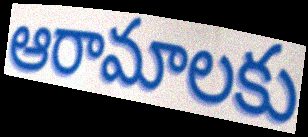
ఆరామాలకు